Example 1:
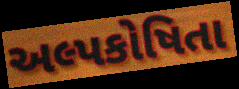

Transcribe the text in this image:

અલ્પકોષિતા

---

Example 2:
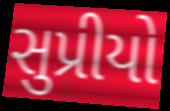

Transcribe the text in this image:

સુપ્રીયો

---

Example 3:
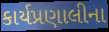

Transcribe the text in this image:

કાર્યપ્રણાલીના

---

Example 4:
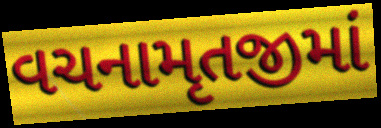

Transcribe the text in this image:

વચનામૃતજીમાં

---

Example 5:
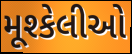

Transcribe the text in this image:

મૂશ્કેલીઓ